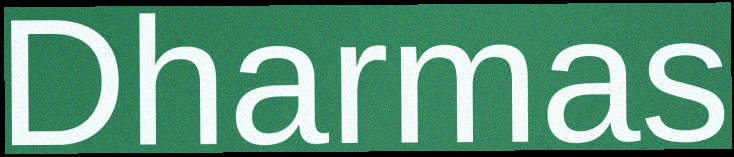
Dharmas